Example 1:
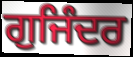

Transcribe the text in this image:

ਗੁਜਿੰਦਰ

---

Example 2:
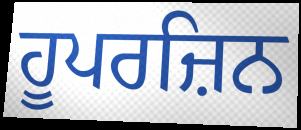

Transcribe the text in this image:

ਹੂਪਰਜ਼ਿਨ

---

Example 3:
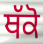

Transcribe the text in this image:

ਥੱਕੋ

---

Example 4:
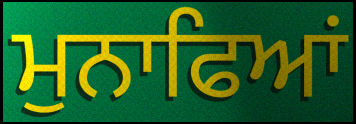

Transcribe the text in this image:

ਮੁਨਾਫਿਆਂ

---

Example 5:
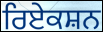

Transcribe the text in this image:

ਰਿਏਕਸ਼ਨ